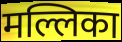
मल्लिका